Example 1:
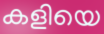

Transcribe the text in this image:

കളിയെ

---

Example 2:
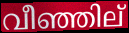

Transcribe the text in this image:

വീഞ്ഞില്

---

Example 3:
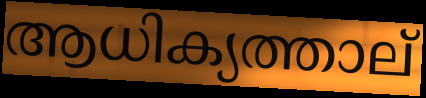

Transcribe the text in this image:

ആധിക്യത്താല്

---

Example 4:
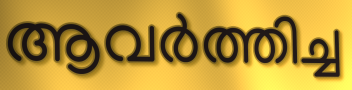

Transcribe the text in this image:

ആവർത്തിച്ച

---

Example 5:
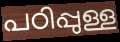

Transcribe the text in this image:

പഠിപ്പുള്ള